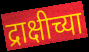
द्राक्षीच्या